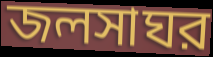
জলসাঘর